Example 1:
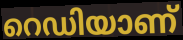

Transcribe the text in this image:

റെഡിയാണ്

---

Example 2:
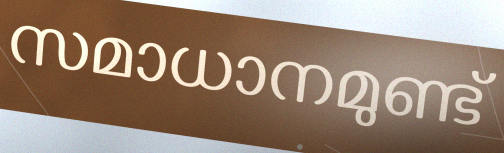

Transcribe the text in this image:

സമാധാനമുണ്ട്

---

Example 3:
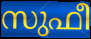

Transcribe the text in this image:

സുഫീ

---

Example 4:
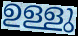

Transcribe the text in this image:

ഉള്ളു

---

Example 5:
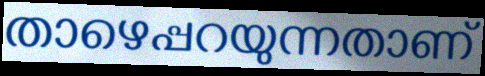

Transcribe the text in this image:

താഴെപ്പറയുന്നതാണ്